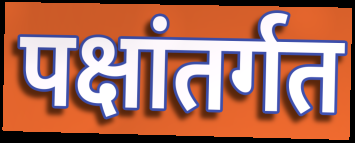
पक्षांतर्गत